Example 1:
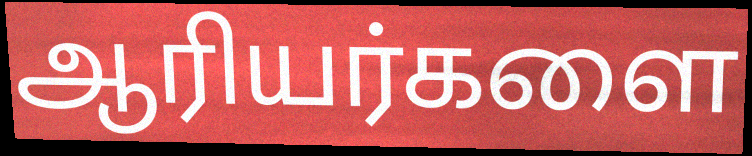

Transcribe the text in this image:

ஆரியர்களை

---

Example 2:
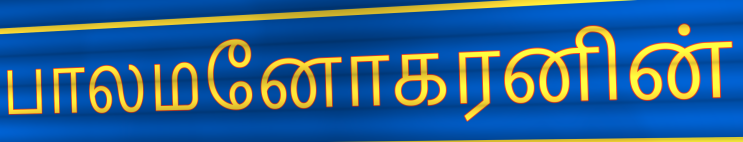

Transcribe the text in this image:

பாலமனோகரனின்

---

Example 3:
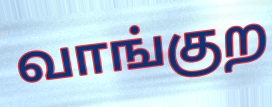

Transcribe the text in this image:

வாங்குற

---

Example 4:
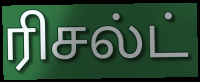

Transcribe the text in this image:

ரிசல்ட்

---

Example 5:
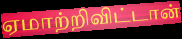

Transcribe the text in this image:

ஏமாற்றிவிட்டான்